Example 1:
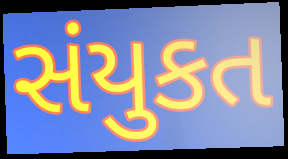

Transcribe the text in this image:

સંયુકત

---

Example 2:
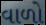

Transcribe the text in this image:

વાળો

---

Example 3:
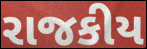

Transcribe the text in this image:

રાજકીય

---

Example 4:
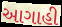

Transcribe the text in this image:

આગાહી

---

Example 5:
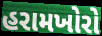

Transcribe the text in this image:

હરામખોરો